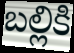
బల్లికి